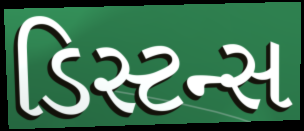
ડિસ્ટન્સ